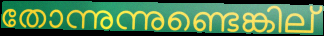
തോന്നുന്നുണ്ടെങ്കില്